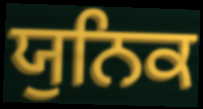
ਯੁਨਿਕ